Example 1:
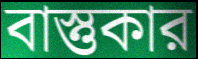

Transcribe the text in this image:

বাস্তুকার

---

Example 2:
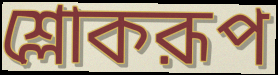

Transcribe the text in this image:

শ্লোকরূপ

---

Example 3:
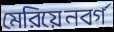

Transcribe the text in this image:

মেরিয়েনবর্গ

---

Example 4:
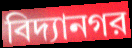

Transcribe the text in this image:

বিদ্যানগর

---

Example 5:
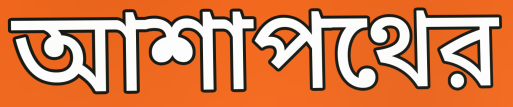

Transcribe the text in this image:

আশাপথের